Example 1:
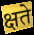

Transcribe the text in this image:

क्षते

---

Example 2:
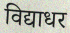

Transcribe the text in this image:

विद्याधर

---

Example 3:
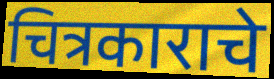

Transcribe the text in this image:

चित्रकाराचे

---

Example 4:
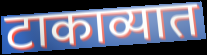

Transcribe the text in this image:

टाकाव्यात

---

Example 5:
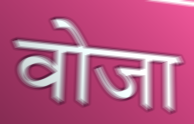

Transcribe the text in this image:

वोजा